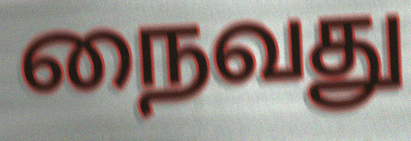
நைவது